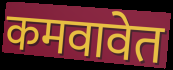
कमवावेत